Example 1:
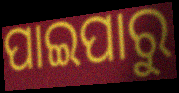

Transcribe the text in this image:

ପାଇପାରୁ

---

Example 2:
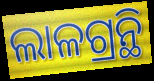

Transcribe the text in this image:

ଲାଳଗ୍ରନ୍ଥି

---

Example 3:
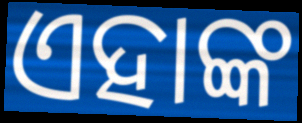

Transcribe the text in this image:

ଏହାଙ୍କ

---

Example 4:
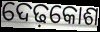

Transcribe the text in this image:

ଦେଢ଼କୋଶ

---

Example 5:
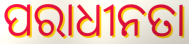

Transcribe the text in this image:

ପରାଧୀନତା